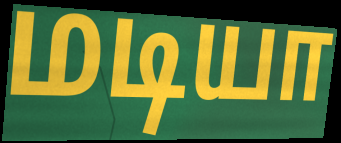
மடியா